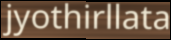
jyothirllata